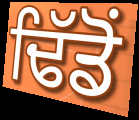
ਢਿੱਡੋਂ